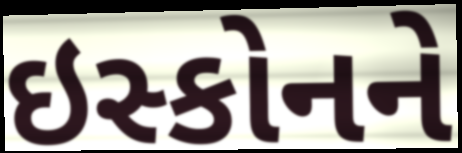
ઇસ્કોનને